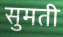
सुमती